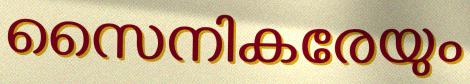
സൈനികരേയും